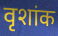
वृशांक